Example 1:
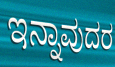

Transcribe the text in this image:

ಇನ್ನಾವುದರ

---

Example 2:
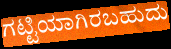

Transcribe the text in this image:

ಗಟ್ಟಿಯಾಗಿರಬಹುದು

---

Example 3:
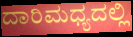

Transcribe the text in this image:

ದಾರಿಮಧ್ಯದಲ್ಲಿ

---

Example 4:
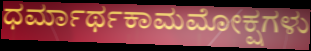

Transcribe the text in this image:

ಧರ್ಮಾರ್ಥಕಾಮಮೋಕ್ಷಗಳು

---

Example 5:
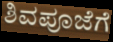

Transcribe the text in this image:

ಶಿವಪೂಜೆಗೆ